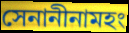
সেনানীনামহং